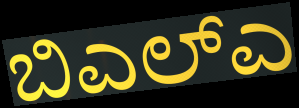
ಬಿಎಲ್ಎ